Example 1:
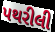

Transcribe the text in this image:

પથરીલી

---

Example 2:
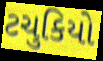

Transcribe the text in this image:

ટચુકિયો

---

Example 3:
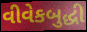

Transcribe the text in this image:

વીવેકબુદ્ધી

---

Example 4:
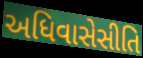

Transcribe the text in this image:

અધિવાસેસીતિ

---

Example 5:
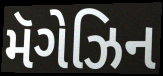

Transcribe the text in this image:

મૅગેઝિન